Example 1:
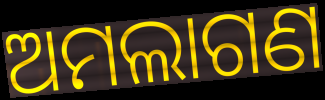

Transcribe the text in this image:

ଅମଲାଗଣ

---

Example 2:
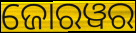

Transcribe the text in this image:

ଜୋରୱର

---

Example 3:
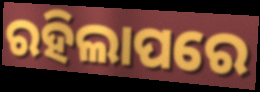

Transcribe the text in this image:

ରହିଲାପରେ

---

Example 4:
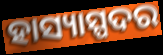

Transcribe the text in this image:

ହାସ୍ୟାସ୍ପଦର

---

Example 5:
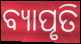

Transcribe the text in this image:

ବ୍ୟାପୃତି